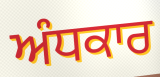
ਅੰਧਕਾਰ